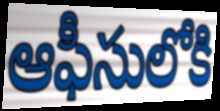
ఆఫీసులోకి